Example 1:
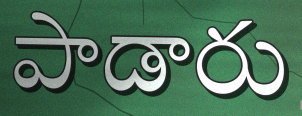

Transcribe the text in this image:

పాడారు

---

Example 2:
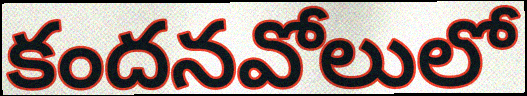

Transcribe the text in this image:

కందనవోలులో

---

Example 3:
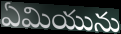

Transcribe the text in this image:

ఏమియును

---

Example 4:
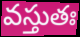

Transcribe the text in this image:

వస్తుతః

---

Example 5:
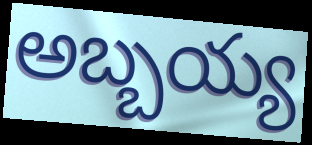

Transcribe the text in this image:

అబ్బయ్య